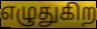
எழுதுகிற